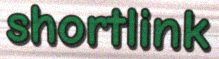
shortlink